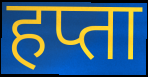
हप्ता